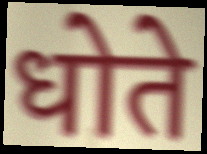
धोते